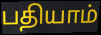
பதியாம்